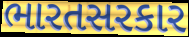
ભારતસરકાર